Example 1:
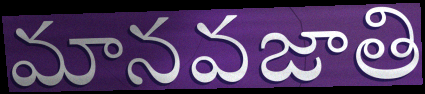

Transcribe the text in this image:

మానవజాతి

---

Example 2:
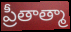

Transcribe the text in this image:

ప్రీతాత్మా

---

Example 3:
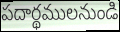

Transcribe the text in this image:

పదార్థములనుండి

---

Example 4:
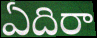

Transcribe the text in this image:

ఏదిరా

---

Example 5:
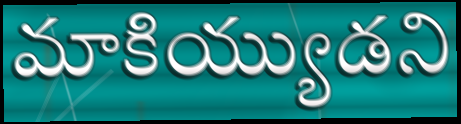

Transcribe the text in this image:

మాకియ్యుడని